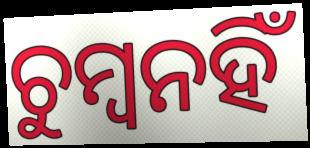
ଚୁମ୍ବନହିଁ